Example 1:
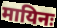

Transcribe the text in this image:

मायिनः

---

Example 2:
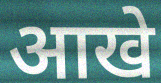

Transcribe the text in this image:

आखे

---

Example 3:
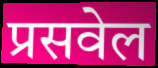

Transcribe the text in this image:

प्रसवेल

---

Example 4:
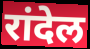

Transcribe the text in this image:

रांदेल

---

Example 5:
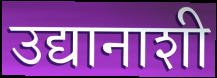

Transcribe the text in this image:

उद्यानाशी